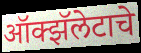
ऑक्झॅलेटाचे